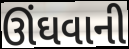
ઊંઘવાની